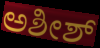
ಅಶೀಶ್